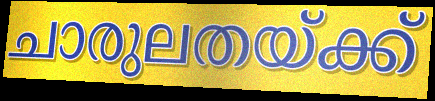
ചാരുലതയ്ക്ക്